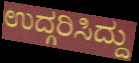
ಉದ್ಗರಿಸಿದ್ದು